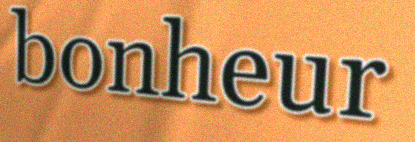
bonheur